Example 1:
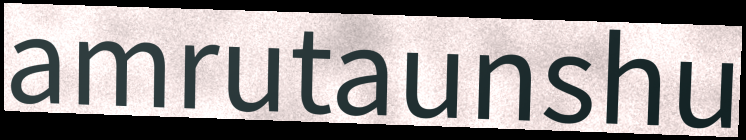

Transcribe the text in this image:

amrutaunshu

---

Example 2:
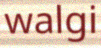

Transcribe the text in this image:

walgi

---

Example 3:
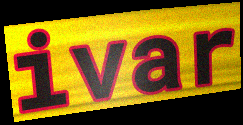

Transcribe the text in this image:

ivar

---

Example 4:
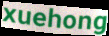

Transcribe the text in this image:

xuehong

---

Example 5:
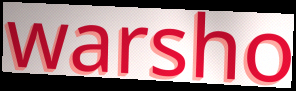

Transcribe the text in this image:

warsho